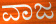
ವಾಜ